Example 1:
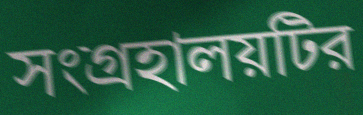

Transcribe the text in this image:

সংগ্রহালয়টির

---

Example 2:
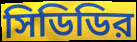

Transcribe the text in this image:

সিডিডির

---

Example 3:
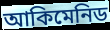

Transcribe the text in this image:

আকিমেনিড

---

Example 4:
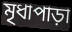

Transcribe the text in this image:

মৃধাপাড়া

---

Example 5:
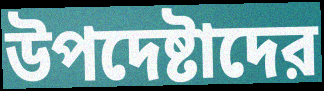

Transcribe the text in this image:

উপদেষ্টাদের